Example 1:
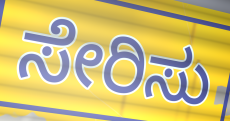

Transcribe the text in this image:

ಸೇರಿಸು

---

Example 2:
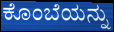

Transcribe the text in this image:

ಕೊಂಬೆಯನ್ನು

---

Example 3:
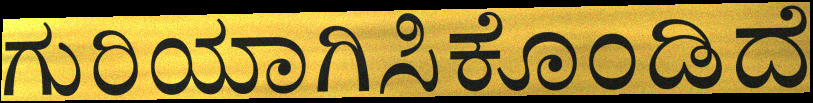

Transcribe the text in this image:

ಗುರಿಯಾಗಿಸಿಕೊಂಡಿದೆ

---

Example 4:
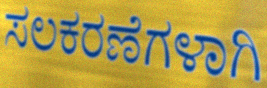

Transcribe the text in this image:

ಸಲಕರಣೆಗಳಾಗಿ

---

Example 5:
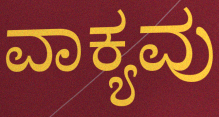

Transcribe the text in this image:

ವಾಕ್ಯವು